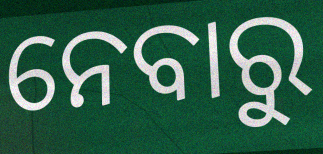
ନେବାରୁ